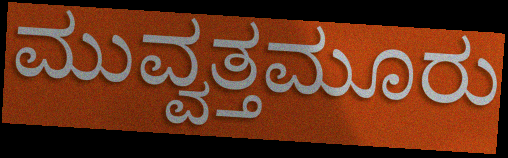
ಮುವ್ವತ್ತಮೂರು